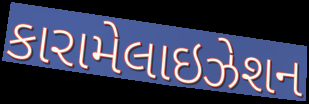
કારામેલાઇઝેશન